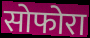
सोफोरा